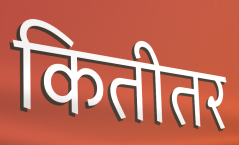
कितीतर